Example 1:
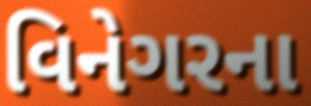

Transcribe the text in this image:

વિનેગરના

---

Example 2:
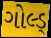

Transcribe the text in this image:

ગોલ્ડ્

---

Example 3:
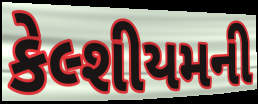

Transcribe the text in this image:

કેલ્શીયમની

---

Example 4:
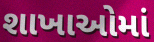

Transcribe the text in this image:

શાખાઓમાં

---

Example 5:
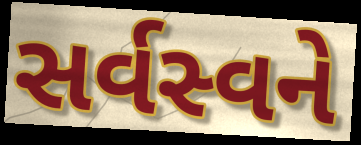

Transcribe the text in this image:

સર્વસ્વને